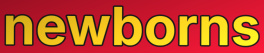
newborns